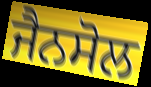
ਜੈਨਸੋਲ